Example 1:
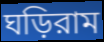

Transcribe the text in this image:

ঘড়িরাম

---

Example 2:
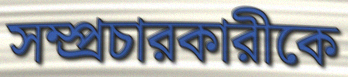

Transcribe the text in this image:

সম্প্রচারকারীকে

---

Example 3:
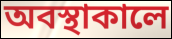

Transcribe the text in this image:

অবস্থাকালে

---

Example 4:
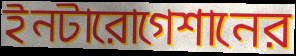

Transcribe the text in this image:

ইনটারোগেশানের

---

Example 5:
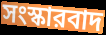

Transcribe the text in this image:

সংস্কারবাদ